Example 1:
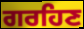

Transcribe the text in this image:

ਗਰਹਿਣ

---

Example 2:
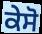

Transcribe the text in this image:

ਕੇਸੋ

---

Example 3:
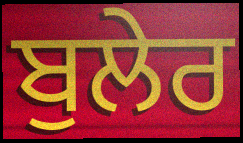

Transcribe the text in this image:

ਬੁਲੇਰ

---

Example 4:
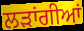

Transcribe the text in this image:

ਲੜਾਂਗੀਆਂ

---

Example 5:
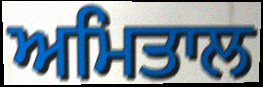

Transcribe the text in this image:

ਅਮਿਤਾਲ